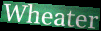
Wheater